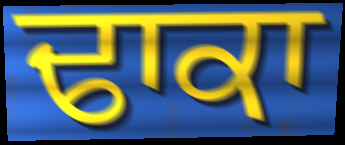
ਢਾਕਾ